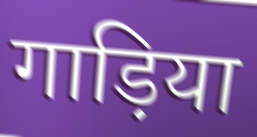
गाड़िया